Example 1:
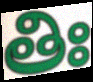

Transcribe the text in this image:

తిః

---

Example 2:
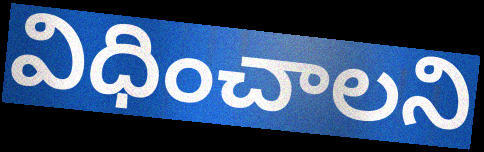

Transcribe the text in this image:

విధించాలని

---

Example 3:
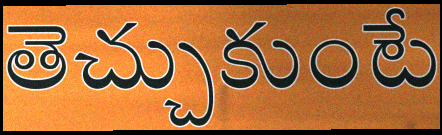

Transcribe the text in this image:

తెచ్చుకుంటే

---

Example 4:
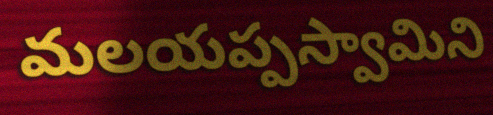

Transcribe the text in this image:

మలయప్పస్వామిని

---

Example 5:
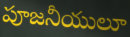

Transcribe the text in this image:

పూజనీయులూ